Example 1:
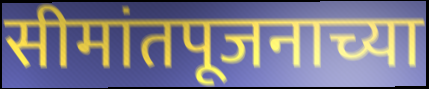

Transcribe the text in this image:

सीमांतपूजनाच्या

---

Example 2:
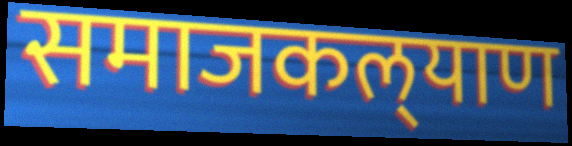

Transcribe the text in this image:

समाजकल्याण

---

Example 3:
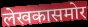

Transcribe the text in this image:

लेखकासमोर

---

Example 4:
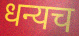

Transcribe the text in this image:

धन्यच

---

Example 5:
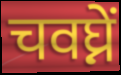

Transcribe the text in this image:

चवघ्नें